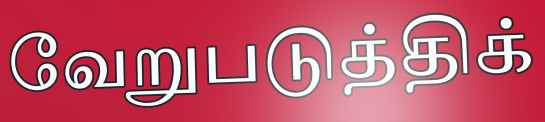
வேறுபடுத்திக்